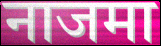
नाजमा